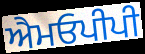
ਐਮਓਪੀਪੀ